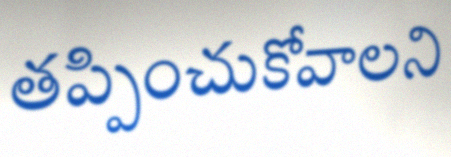
తప్పించుకోవాలని